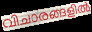
വിചാരങ്ങളിൽ